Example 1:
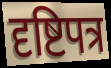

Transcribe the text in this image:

दृष्टिपत्र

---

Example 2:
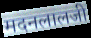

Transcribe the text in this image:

मदनलालजी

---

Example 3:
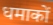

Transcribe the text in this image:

धमाकों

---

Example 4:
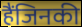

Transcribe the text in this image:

हैंजिनकी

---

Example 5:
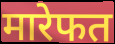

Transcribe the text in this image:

मारेफत